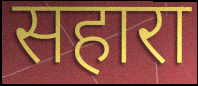
सहारा